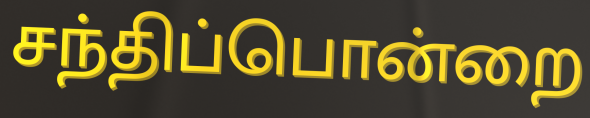
சந்திப்பொன்றை